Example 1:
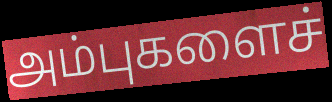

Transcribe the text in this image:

அம்புகளைச்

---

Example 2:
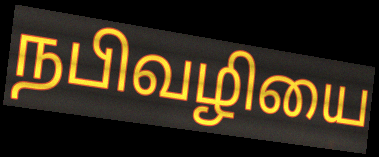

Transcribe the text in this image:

நபிவழியை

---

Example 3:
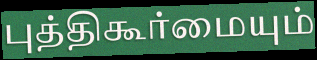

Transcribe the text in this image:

புத்திகூர்மையும்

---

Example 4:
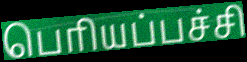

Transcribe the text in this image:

பெரியப்பச்சி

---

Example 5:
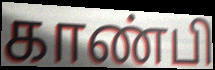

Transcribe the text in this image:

காண்பி